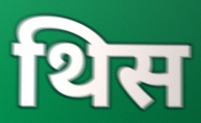
थिस